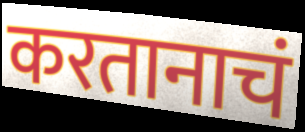
करतानाचं